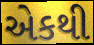
એકથી